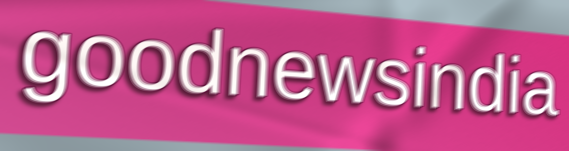
goodnewsindia